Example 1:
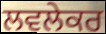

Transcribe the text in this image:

ਲਵਲੇਕਰ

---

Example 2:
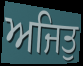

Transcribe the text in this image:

ਅਜਿਤੁ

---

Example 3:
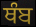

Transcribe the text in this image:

ਥੰਬ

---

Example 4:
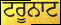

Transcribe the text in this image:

ਟਰੂਨਾਟ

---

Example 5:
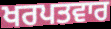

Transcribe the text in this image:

ਖਰਪਤਵਾਰ